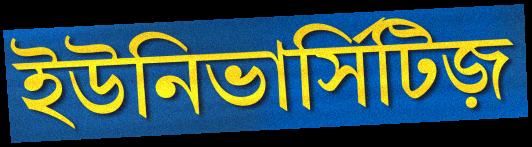
ইউনিভার্সিটিজ়